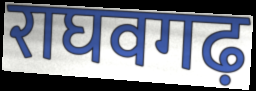
राघवगढ़